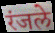
रंजले